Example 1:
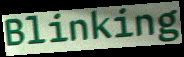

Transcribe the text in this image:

Blinking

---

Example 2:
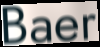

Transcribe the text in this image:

Baer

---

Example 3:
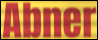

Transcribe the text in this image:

Abner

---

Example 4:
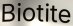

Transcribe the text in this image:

Biotite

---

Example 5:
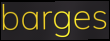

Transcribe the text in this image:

barges